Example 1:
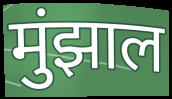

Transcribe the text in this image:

मुंझाल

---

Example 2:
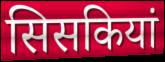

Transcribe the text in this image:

सिसकियां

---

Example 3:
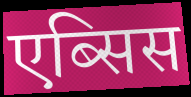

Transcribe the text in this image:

एब्सिस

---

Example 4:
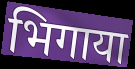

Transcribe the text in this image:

भिगाया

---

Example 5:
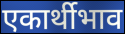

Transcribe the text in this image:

एकार्थीभाव